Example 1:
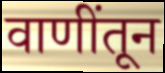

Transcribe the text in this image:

वाणींतून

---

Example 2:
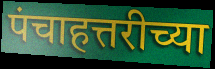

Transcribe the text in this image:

पंचाहत्तरीच्या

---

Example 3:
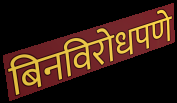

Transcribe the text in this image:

बिनविरोधपणे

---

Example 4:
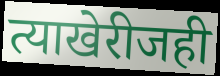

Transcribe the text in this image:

त्याखेरीजही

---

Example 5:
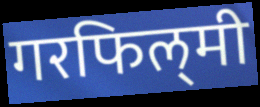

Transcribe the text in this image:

गरफिल्मी